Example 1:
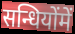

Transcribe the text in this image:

सन्धियोंमें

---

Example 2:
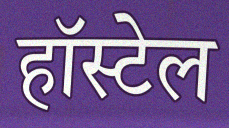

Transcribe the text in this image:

हॉस्टेल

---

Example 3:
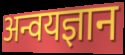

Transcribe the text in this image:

अन्वयज्ञान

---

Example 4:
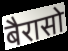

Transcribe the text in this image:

बैरासो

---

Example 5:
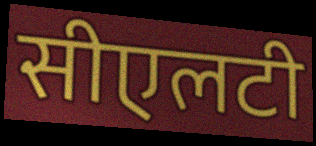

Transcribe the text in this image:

सीएलटी